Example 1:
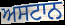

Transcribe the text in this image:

ਅਸਟਾਨ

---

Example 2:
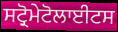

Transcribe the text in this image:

ਸਟ੍ਰੋਮੇਟੋਲਾਈਟਸ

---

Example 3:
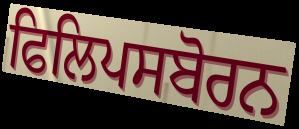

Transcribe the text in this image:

ਫਿਲਿਪਸਬੋਰਨ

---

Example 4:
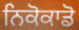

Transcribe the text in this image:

ਨਿਕੋਕਾਡੋ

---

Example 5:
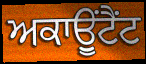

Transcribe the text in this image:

ਅਕਾਉੂਂਟੈਂਟ